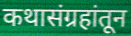
कथासंग्रहांतून